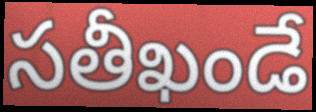
సతీఖండే